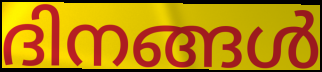
ദിനങ്ങൾ